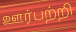
ஊர்பற்றி